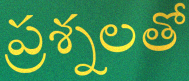
ప్రశ్నలతో